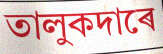
তালুকদাৰে